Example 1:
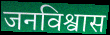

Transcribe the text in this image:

जनविश्वास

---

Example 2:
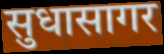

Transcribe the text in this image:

सुधासागर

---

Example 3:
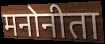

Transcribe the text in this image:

मनोनीता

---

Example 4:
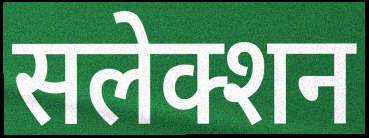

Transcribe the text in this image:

सलेक्शन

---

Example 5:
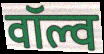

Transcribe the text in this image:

वॉल्व